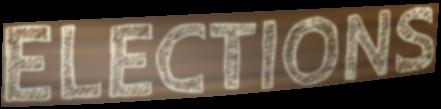
ELECTIONS